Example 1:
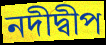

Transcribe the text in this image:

নদীদ্বীপ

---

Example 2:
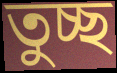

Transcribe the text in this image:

তুচ্ছ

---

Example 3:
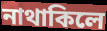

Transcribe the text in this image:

নাথাকিলে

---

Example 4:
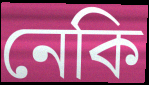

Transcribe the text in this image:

নেকি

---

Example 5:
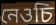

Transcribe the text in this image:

নেওচি